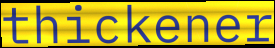
thickener